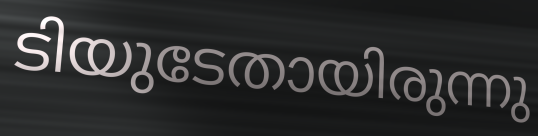
ടിയുടേതായിരുന്നു